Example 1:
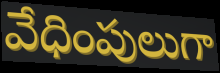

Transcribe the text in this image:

వేధింపులుగా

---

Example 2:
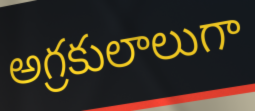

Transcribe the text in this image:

అగ్రకులాలుగా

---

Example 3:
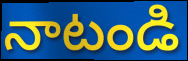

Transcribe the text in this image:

నాటండి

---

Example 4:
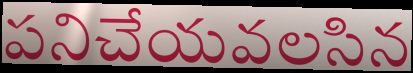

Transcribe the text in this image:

పనిచేయవలసిన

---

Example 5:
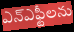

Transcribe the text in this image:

ఎన్ఎఫ్టీలను